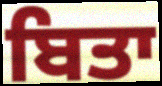
ਬਿਤਾ